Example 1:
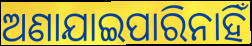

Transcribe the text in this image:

ଅଣାଯାଇପାରିନାହିଁ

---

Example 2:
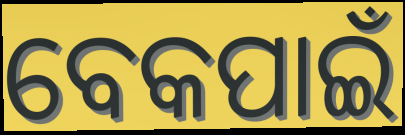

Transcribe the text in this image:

ବେକପାଇଁ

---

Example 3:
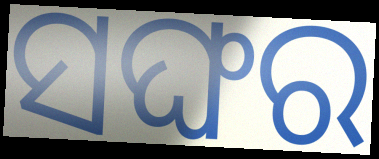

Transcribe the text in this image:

ସଙ୍ଘର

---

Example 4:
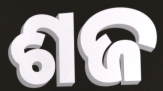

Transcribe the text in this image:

ଶଜ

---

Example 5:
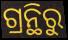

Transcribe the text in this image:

ଗ୍ରନ୍ଥିରୁ